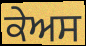
ਕੇਅਸ